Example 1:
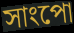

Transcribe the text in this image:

সাংপো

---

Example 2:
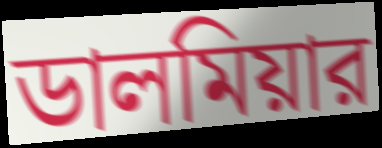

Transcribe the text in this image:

ডালমিয়ার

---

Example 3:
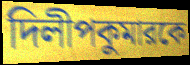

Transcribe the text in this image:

দিলীপকুমারকে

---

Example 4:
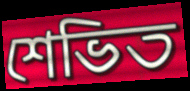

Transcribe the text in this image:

শেভিত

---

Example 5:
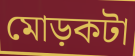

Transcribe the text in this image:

মোড়কটা